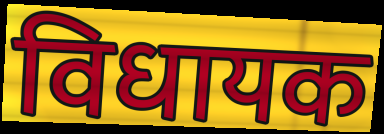
विधायक